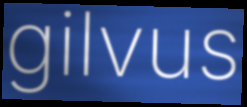
gilvus